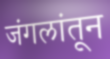
जंगलांतून